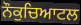
ਨੌਕੁਚਿਆਟਲ